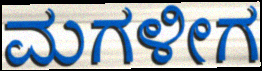
ಮಗಳೀಗ